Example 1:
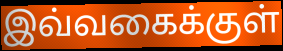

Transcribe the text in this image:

இவ்வகைக்குள்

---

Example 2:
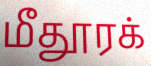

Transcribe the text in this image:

மீதூரக்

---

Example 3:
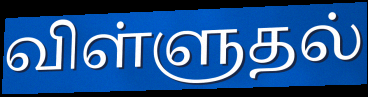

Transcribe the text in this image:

விள்ளுதல்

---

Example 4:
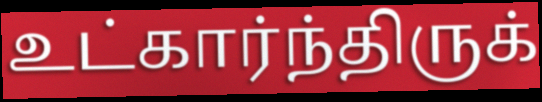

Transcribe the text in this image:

உட்கார்ந்திருக்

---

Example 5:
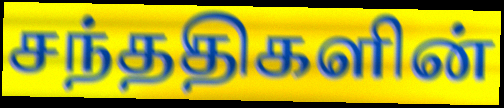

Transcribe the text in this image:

சந்ததிகளின்